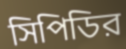
সিপিডির